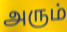
அரும்